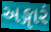
અઙ્ગારં